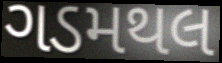
ગડમથલ